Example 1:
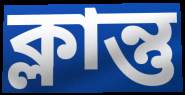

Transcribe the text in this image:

ক্লান্তু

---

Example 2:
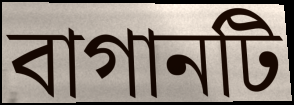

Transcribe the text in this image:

বাগানটি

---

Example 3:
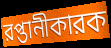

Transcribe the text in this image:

রপ্তানীকারক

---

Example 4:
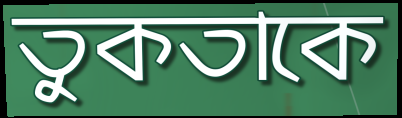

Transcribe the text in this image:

তুকতাকে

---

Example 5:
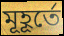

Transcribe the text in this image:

মূহূর্তে